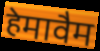
हेमावैम